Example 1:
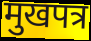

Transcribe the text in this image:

मुखपत्र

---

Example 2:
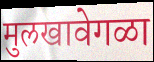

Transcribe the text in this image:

मुलखावेगळा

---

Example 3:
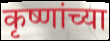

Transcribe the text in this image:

कृष्णांच्या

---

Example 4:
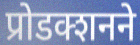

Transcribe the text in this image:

प्रोडक्शनने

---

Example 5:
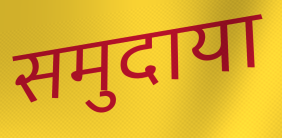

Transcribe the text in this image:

समुदाया